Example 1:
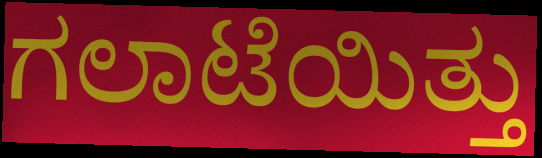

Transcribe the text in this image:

ಗಲಾಟೆಯಿತ್ತು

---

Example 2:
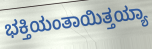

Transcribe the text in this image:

ಭಕ್ತಿಯಂತಾಯಿತ್ತಯ್ಯಾ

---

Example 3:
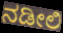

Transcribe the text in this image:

ನಡೀಲಿ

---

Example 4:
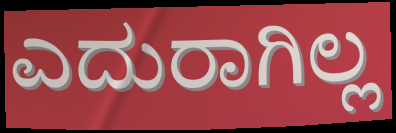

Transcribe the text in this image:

ಎದುರಾಗಿಲ್ಲ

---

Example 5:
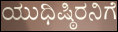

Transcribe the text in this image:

ಯುಧಿಷ್ಠಿರನಿಗೆ